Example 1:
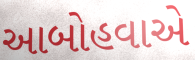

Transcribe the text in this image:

આબોહવાએ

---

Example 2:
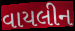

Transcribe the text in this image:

વાયલીન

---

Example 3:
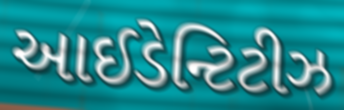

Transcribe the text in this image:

આઈડેન્ટિટીઝ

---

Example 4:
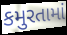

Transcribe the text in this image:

કમુરતામાં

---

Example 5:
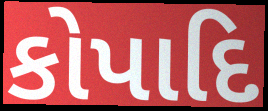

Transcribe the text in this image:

કોપાદિ